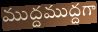
ముద్దముద్దగా